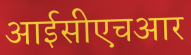
आईसीएचआर